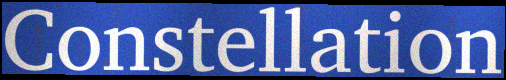
Constellation